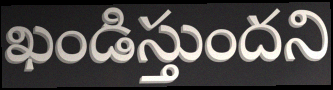
ఖండిస్తుందని